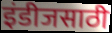
इंडीजसाठी